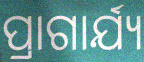
ପ୍ରାଗାର୍ଯ୍ୟ